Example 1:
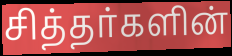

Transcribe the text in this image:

சித்தர்களின்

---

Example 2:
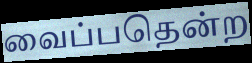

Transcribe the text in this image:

வைப்பதென்ற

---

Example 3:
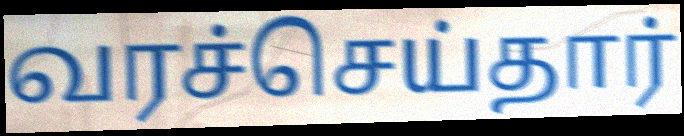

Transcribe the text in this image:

வரச்செய்தார்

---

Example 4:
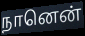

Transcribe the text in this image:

நானென்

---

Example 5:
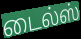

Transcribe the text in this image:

டைல்ஸ்